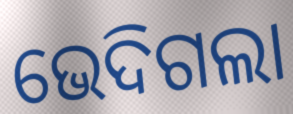
ଭେଦିଗଲା